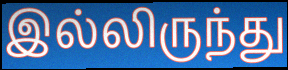
இல்லிருந்து